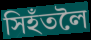
সিহঁতলৈ